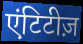
एंटिटीज़